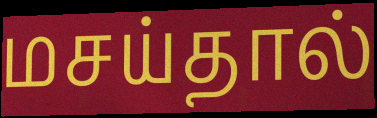
மசய்தால்